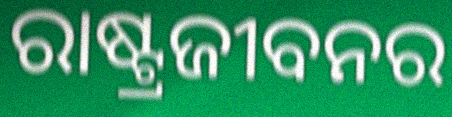
ରାଷ୍ଟ୍ରଜୀବନର